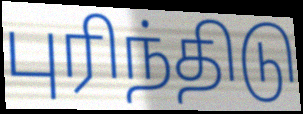
புரிந்திடு